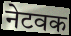
नेटवक